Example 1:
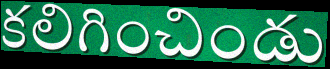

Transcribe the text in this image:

కలిగించిండు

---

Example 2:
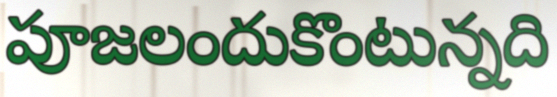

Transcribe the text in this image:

పూజలందుకొంటున్నది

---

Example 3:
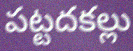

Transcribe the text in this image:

పట్టదకల్లు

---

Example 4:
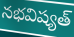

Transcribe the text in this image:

నభవిష్యత్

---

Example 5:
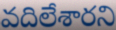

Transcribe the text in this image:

వదిలేశారని